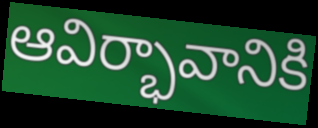
ఆవిర్భావానికి